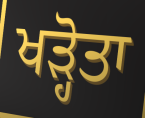
ਖੜ੍ਹੋਤਾ